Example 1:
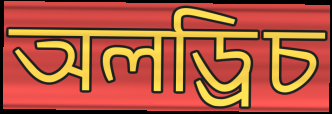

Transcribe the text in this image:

অলড্রিচ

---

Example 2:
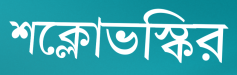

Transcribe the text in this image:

শক্লোভস্কির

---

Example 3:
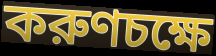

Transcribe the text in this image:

করুণচক্ষে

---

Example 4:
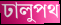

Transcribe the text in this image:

ঢালুপথ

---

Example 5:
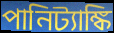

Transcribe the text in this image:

পানিট্যাঙ্কি